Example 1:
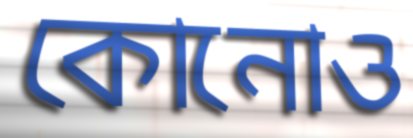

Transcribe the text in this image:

কোনোও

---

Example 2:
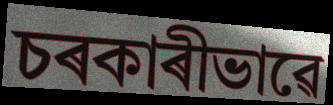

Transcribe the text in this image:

চৰকাৰীভাৱে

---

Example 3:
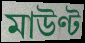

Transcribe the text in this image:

মাউণ্ট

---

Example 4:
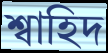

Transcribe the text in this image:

শ্বাহিদ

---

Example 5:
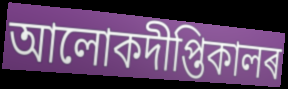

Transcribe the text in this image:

আলোকদীপ্তিকালৰ